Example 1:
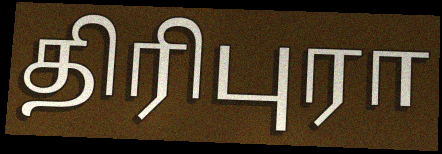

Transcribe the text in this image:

திரிபுரா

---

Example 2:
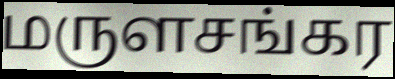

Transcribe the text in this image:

மருளசங்கர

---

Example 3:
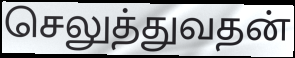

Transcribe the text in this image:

செலுத்துவதன்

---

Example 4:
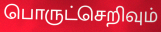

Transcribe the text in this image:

பொருட்செறிவும்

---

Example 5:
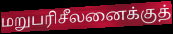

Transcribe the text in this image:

மறுபரிசீலனைக்குத்